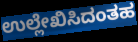
ಉಲ್ಲೇಖಿಸಿದಂತಹ